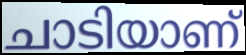
ചാടിയാണ്